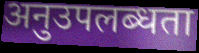
अनुउपलब्धता